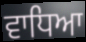
ਵਾਧਿਆ